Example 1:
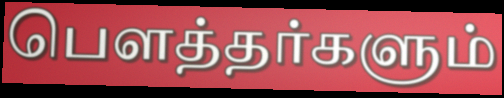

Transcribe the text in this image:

பௌத்தர்களும்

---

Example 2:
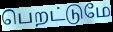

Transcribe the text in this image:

பெறட்டுமே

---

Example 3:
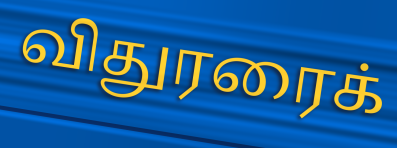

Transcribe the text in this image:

விதுரரைக்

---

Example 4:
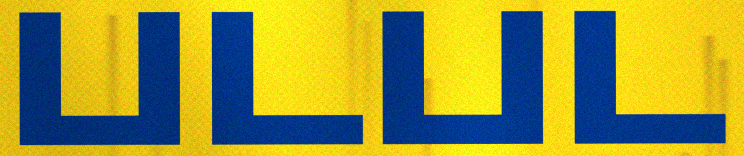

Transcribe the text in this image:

படபட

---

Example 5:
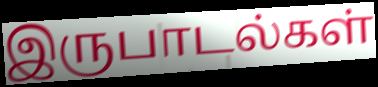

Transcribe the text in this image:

இருபாடல்கள்